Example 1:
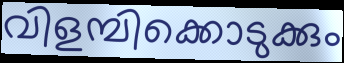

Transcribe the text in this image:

വിളമ്പിക്കൊടുക്കും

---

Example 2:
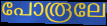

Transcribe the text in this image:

പോരൂലേ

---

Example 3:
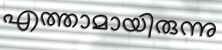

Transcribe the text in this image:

എത്താമായിരുന്നു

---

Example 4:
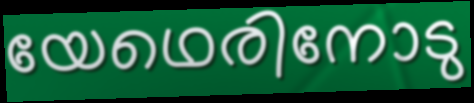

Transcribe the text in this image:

യേഥെരിനോടു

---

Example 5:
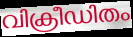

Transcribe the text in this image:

വിക്രീഡിതം